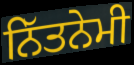
ਨਿੱਤਨੇਮੀ